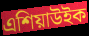
এশিয়াউইক